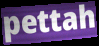
pettah